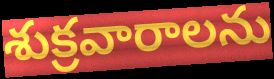
శుక్రవారాలను